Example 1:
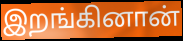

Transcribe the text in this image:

இறங்கினான்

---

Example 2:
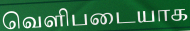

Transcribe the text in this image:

வெளிபடையாக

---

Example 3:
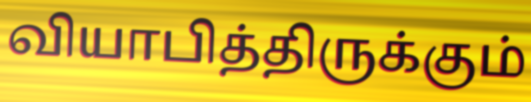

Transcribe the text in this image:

வியாபித்திருக்கும்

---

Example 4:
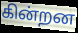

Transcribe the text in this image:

கின்றன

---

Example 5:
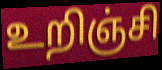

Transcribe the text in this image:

உறிஞ்சி